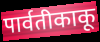
पार्वतीकाकू